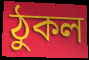
ঠুকল